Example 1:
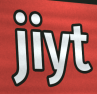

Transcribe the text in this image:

jiyt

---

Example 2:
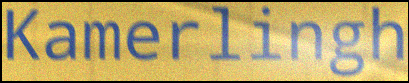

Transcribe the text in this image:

Kamerlingh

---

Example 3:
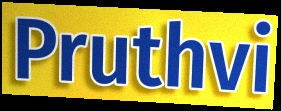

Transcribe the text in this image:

Pruthvi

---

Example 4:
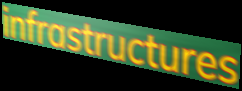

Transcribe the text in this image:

infrastructures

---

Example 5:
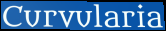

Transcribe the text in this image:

Curvularia